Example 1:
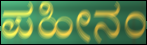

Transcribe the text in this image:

ಪಹೀನಂ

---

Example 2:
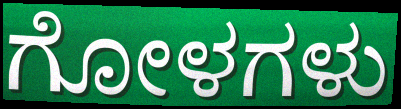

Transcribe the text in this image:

ಗೋಳಗಳು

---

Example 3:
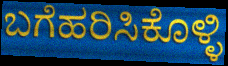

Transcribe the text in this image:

ಬಗೆಹರಿಸಿಕೊಳ್ಳಿ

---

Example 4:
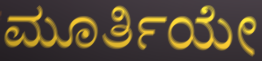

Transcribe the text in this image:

ಮೂರ್ತಿಯೇ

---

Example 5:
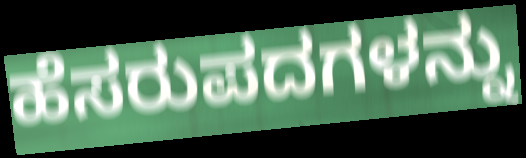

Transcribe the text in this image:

ಹೆಸರುಪದಗಳನ್ನು